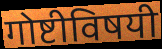
गोष्टीविषयी